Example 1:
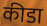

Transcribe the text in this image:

कीडा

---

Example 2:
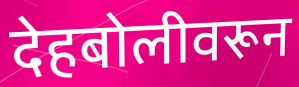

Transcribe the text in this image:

देहबोलीवरून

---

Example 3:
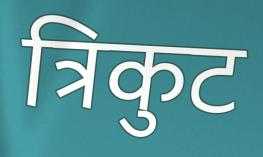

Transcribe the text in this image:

त्रिकुट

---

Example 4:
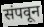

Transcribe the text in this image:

संपवून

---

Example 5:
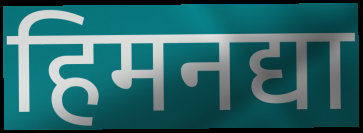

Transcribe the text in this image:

हिमनद्या